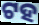
ଟହ